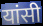
यांसी